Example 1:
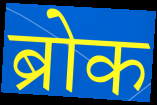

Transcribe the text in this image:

ब्रोक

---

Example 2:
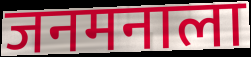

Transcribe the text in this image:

जनमनाला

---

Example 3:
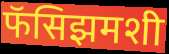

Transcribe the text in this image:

फॅसिझमशी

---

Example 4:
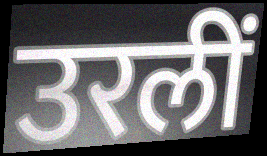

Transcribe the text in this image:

उरलीं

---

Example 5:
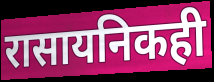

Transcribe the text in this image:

रासायनिकही